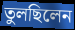
তুলছিলেন